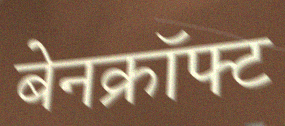
बेनक्रॉफ्ट